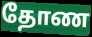
தோண